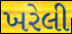
ખરેલી